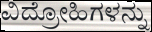
ವಿದ್ರೋಹಿಗಳನ್ನು